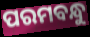
ପରମବନ୍ଧୁ